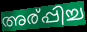
അര്പ്പിച്ച